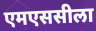
एमएससीला